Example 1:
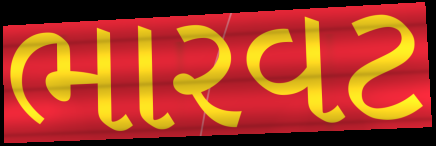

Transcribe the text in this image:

ભારવટ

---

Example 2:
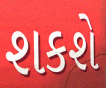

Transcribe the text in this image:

શકશે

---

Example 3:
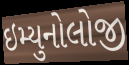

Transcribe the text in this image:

ઇમ્યુનોલોજી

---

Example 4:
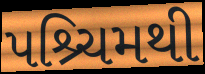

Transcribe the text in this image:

પશ્ર્ચિમથી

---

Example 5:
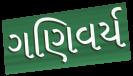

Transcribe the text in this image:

ગણિવર્ય